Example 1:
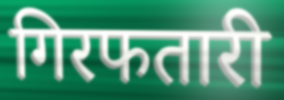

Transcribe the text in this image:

गिरफतारी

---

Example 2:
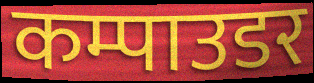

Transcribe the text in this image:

कम्पाउडर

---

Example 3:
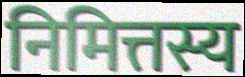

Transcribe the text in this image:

निमित्तस्य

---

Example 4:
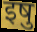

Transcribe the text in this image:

इषु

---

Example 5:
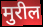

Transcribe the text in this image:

मुरील